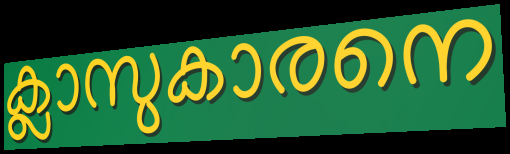
ക്ലാസുകാരനെ